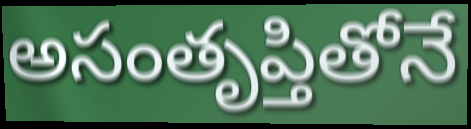
అసంతృప్తితోనే